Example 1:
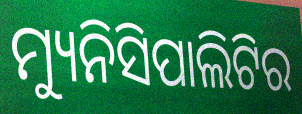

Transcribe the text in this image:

ମ୍ୟୁନିସିପାଲିଟିର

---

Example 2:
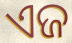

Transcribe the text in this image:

ଏଜ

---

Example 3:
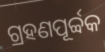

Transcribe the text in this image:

ଗ୍ରହଣପୂର୍ବ୍ବକ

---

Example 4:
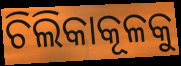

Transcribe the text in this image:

ଚିଲିକାକୂଳକୁ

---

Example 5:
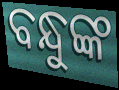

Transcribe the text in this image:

ବନ୍ଧୁଙ୍କ